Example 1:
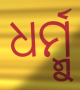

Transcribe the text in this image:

ଧର୍ମ୍ମୁ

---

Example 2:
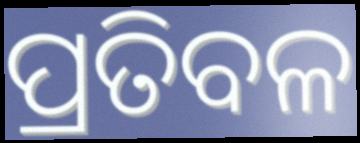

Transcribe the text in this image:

ପ୍ରତିବଳ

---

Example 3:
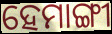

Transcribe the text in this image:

ହେମାଙ୍ଗୀ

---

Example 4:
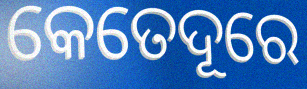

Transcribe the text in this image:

କେତେଦୂରେ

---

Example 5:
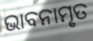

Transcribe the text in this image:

ଭାବନାମୃତ